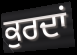
ਕੁਰਦਾਂ